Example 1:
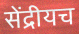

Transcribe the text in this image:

सेंद्रीयच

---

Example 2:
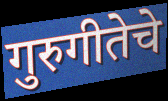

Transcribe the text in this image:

गुरुगीतेचे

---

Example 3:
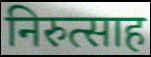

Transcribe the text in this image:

निरुत्साह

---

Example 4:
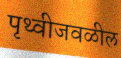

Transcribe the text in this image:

पृथ्वीजवळील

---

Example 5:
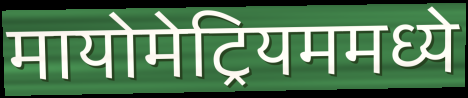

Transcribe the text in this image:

मायोमेट्रियममध्ये